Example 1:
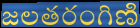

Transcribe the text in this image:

జలతరంగిణి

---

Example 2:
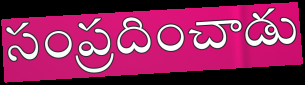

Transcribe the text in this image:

సంప్రదించాడు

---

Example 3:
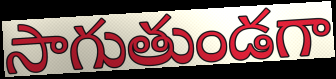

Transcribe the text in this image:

సాగుతుండగా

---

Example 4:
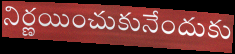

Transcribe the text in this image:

నిర్ణయించుకునేందుకు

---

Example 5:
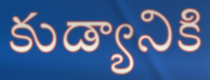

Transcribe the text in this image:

కుడ్యానికి